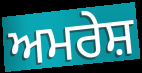
ਅਮਰੇਸ਼